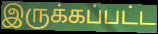
இருக்கப்பட்ட